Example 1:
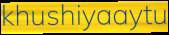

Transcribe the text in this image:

khushiyaaytu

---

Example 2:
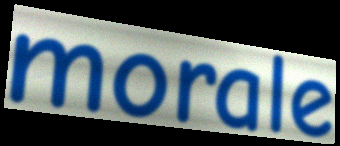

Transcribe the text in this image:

morale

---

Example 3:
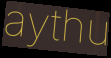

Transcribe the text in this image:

aythu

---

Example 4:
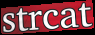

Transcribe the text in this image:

strcat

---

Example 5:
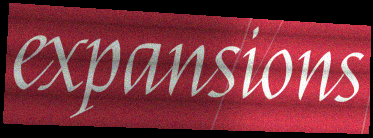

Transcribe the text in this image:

expansions